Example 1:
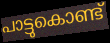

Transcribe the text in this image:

പാട്ടുകൊണ്ട്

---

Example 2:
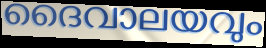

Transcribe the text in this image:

ദൈവാലയവും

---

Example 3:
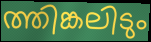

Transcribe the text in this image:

ത്തിങ്കലിടും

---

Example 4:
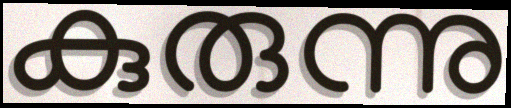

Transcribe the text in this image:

കുരുന്നു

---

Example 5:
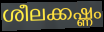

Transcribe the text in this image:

ശീലക്കഷ്ണം